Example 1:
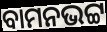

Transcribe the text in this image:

ବାମନଭଟ୍ଟ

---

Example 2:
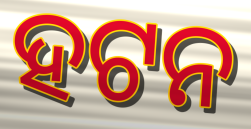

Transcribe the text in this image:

ହଟନ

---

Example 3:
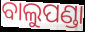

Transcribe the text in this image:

ବାଲୁପଣ୍ଡା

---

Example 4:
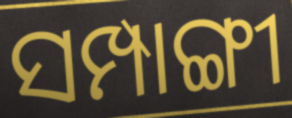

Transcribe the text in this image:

ସମ୍ପାଙ୍ଗୀ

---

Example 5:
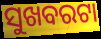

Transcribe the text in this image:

ସୁଖବରଟା